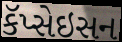
કૅપ્સેઇસન